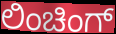
ಲಿಂಚಿಂಗ್